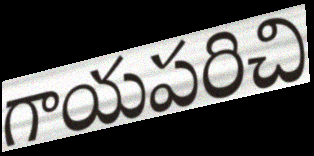
గాయపరిచి